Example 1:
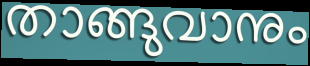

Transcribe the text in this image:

താങ്ങുവാനും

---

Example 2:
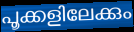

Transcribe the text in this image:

പൂക്കളിലേക്കും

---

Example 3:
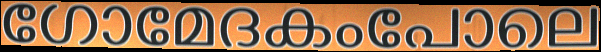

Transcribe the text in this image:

ഗോമേദകംപോലെ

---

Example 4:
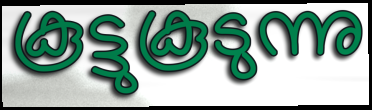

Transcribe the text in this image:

കൂട്ടുകൂടുന്നു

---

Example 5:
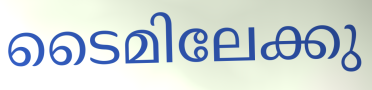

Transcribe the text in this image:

ടൈമിലേക്കു